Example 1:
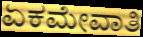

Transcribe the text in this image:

ಏಕಮೇವಾತಿ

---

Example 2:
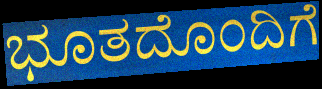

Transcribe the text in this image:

ಭೂತದೊಂದಿಗೆ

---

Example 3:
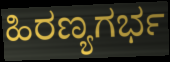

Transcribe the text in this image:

ಹಿರಣ್ಯಗರ್ಭ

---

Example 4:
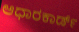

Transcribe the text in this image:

ಆಧಾರಕಾರ್ಡ್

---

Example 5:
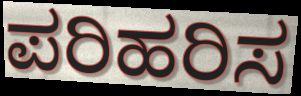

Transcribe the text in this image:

ಪರಿಹರಿಸ